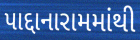
પાદ્દાનારામમાંથી